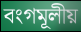
বংগমূলীয়